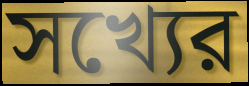
সখ্যের